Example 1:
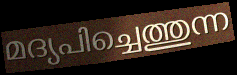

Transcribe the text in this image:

മദ്യപിച്ചെത്തുന്ന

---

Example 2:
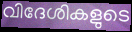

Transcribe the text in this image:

വിദേശികളുടെ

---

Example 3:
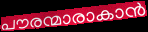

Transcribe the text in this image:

പൗരന്മാരാകാൻ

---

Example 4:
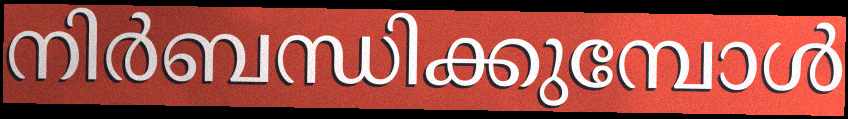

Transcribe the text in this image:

നിർബന്ധിക്കുമ്പോൾ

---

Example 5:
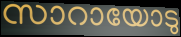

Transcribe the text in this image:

സാറായോടു